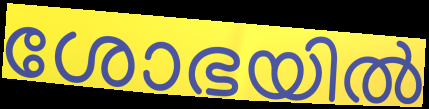
ശോഭയിൽ